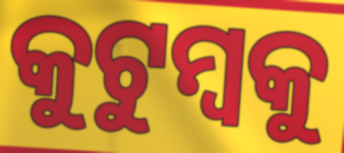
କୁଟୁମ୍ବକୁ